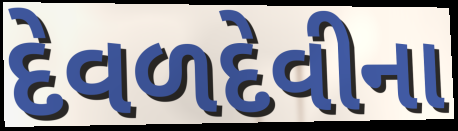
દેવળદેવીના